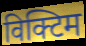
विक्टिम